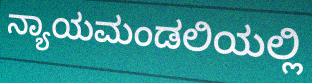
ನ್ಯಾಯಮಂಡಲಿಯಲ್ಲಿ